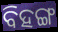
ବିହଙ୍ଗ